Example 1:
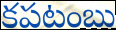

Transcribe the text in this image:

కపటంబు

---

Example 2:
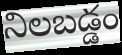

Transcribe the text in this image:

నిలబడ్డం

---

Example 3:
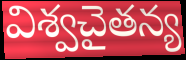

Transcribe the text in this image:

విశ్వచైతన్య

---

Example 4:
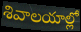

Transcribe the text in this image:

శివాలయాల్లో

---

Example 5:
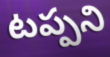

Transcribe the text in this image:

టప్పని